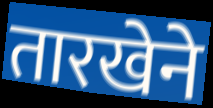
तारखेने